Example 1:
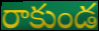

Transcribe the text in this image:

రాకుండ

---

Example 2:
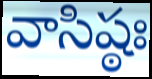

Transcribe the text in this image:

వాసిష్ఠః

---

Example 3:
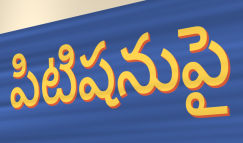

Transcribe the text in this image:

పిటిషనుపై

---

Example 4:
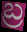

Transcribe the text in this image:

బ్ర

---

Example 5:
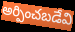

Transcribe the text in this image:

అర్పించబడేవి